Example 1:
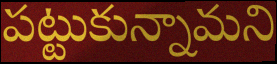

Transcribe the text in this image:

పట్టుకున్నామని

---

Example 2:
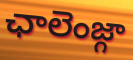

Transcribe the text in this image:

ఛాలెంజ్గా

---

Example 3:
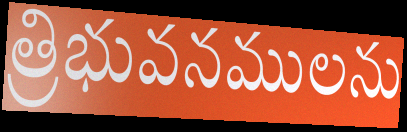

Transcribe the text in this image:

త్రిభువనములను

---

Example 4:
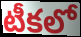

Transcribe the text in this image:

టీకలో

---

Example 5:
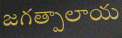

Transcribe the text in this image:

జగత్పాలాయ